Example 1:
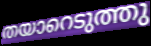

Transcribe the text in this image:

തയാറെടുത്തു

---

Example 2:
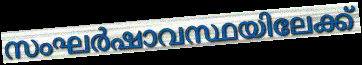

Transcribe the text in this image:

സംഘർഷാവസ്ഥയിലേക്ക്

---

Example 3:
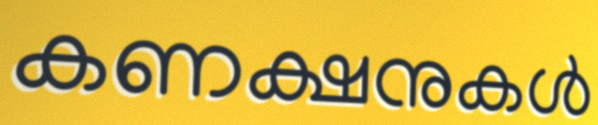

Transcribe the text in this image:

കണക്ഷനുകൾ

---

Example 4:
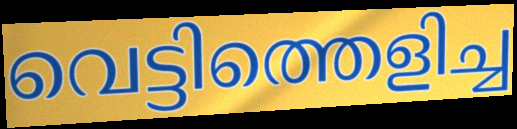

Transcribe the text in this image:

വെട്ടിത്തെളിച്ച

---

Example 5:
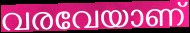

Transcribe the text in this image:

വരവേയാണ്